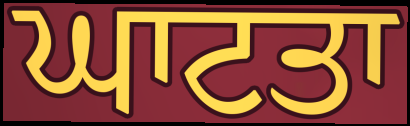
ਘਾਟਤਾ